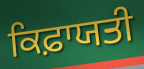
ਕਿਫ਼ਾਯਤੀ